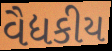
વૈદ્યકીય